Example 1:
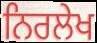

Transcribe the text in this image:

ਨਿਰਲੇਖ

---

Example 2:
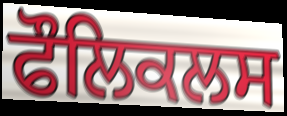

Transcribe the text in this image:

ਫੌਲਿਕਲਸ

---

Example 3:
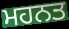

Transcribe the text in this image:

ਮਹਨਤ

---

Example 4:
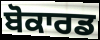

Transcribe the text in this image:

ਬੋਕਾਰਡ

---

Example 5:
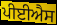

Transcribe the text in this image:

ਪੀਈਐਸ